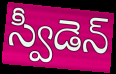
స్వీడెన్